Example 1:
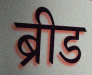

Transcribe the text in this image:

ब्रीड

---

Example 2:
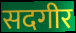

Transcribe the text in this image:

सदगीर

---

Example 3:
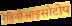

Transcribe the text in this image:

रेडियोआइसोटोप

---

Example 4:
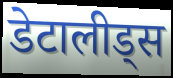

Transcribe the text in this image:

डेटालीड्स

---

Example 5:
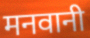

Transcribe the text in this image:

मनवानी